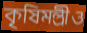
কৃষিমন্ত্রীও